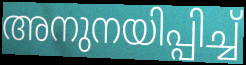
അനുനയിപ്പിച്ച്